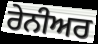
ਰੇਨੀਅਰ